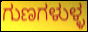
ಗುಣಗಳುಳ್ಳ